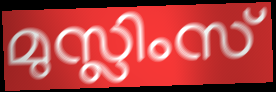
മുസ്ലിംസ്